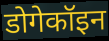
डोगेकॉइन